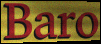
Baro